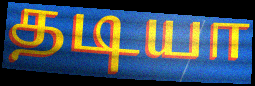
தடியா